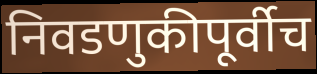
निवडणुकीपूर्वीच